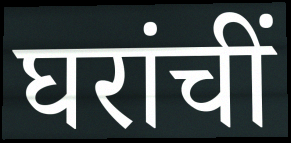
घरांचीं